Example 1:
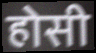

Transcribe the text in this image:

होसी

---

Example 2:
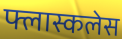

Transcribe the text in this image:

फ्लास्कलेस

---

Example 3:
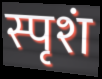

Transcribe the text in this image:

स्पृशं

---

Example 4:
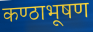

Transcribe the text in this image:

कण्ठाभूषण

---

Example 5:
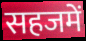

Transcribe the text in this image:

सहजमें